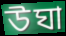
উঘা